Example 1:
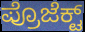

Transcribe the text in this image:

ಪ್ರೊಜೆಕ್ಟ್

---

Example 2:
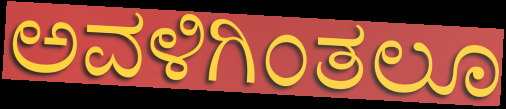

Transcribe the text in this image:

ಅವಳಿಗಿಂತಲೂ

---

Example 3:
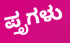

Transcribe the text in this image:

ಪ್ತೃಗಳು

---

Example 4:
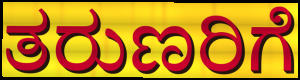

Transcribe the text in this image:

ತರುಣರಿಗೆ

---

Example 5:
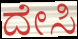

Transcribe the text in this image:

ದೇಸಿ